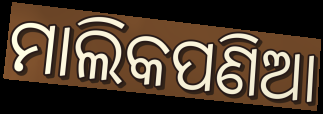
ମାଲିକପଣିଆ